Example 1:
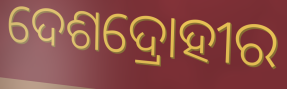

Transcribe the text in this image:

ଦେଶଦ୍ରୋହୀର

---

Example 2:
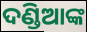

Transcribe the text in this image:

ଦଣ୍ଡିଆଙ୍କ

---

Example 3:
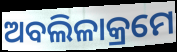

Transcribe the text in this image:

ଅବଲିଳାକ୍ରମେ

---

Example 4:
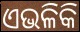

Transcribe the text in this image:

ଏଭଳିକି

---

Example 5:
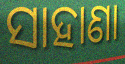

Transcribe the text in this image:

ସାହାଣା